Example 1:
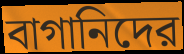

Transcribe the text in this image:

বাগানিদের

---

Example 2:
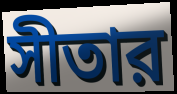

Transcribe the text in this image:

সীতার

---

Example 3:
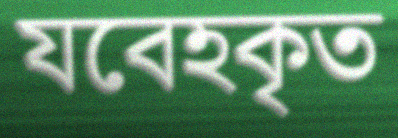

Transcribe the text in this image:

যবেহকৃত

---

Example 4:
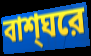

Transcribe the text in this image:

বাশ্ঘরে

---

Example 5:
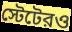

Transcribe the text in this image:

স্টেটেরও